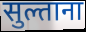
सुल्ताना